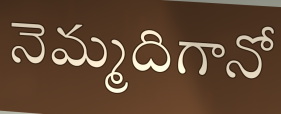
నెమ్మదిగానో